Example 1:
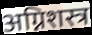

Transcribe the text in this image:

अग्निशस्त्र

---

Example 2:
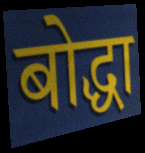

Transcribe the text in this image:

बोद्धा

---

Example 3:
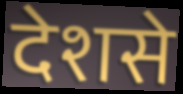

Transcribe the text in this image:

देशसे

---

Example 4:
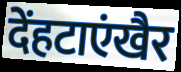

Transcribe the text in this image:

देंहटाएंखैर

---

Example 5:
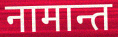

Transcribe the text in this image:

नामान्त